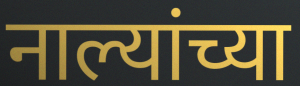
नाल्यांच्या